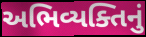
અભિવ્યક્તિનું